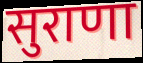
सुराणा